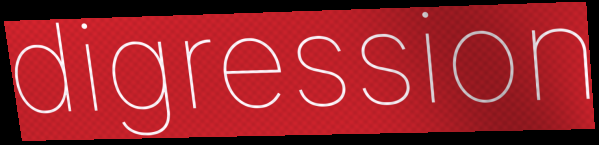
digression